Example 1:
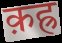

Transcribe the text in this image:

क़ह्र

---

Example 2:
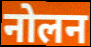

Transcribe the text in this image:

नोलन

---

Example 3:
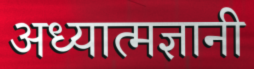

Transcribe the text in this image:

अध्यात्मज्ञानी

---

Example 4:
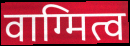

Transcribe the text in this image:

वाग्मित्व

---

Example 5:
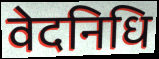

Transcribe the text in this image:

वेदनिधि